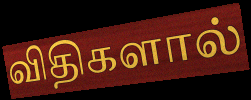
விதிகளால்